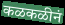
कळकळीनं